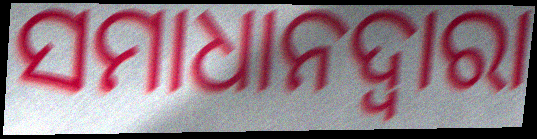
ସମାଧାନଦ୍ୱାରା